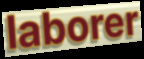
laborer